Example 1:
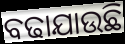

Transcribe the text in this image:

ବଢାଯାଉଛି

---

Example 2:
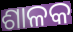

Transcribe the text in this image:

ଶାଳକ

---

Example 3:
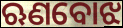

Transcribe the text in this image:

ଋଣବୋଝ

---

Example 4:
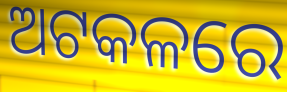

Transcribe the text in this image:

ଅଟକଳରେ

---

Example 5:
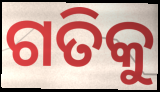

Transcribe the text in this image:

ଗତିକୁ